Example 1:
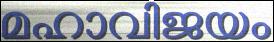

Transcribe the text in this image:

മഹാവിജയം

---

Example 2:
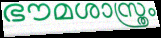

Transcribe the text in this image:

ഭൗമശാസ്ത്രം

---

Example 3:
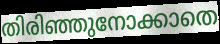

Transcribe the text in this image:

തിരിഞ്ഞുനോക്കാതെ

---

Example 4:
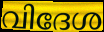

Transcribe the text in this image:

വിദേശ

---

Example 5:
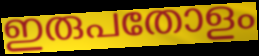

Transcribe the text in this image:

ഇരുപതോളം